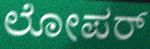
ಲೋಪರ್